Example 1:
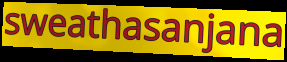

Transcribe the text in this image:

sweathasanjana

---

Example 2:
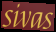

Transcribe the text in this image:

sivas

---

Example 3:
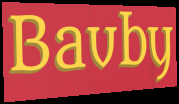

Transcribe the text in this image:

Bauby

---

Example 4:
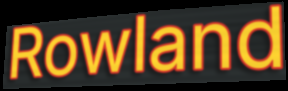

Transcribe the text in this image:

Rowland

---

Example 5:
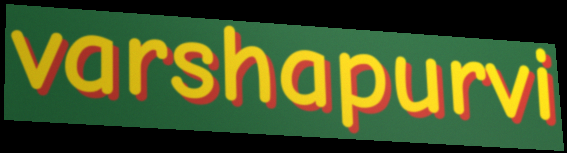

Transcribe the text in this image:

varshapurvi